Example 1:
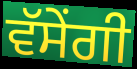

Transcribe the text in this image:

ਵੱਸੇਂਗੀ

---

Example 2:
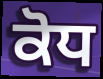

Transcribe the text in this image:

ਕੋਧ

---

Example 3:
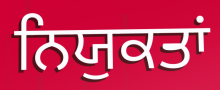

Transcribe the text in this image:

ਨਿਯੁਕਤਾਂ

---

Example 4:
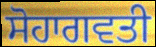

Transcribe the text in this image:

ਸੋਹਾਗਵਤੀ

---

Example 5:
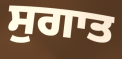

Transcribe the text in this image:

ਸੁਗਾਤ